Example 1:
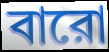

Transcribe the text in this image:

বারো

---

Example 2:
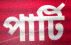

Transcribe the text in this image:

পার্টি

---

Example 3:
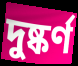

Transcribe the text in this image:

দুষ্কর্ণ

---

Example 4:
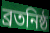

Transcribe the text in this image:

ব্রতনিষ্ঠ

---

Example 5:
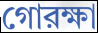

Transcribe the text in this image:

গোরক্ষা